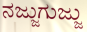
ನಜ್ಜುಗುಜ್ಜು